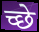
च्छे